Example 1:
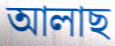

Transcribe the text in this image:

আলাছ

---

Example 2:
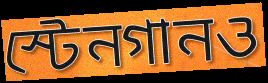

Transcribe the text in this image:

স্টেনগানও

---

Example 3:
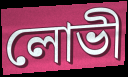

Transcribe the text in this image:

লোভী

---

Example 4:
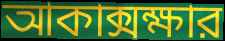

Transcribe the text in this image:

আকাক্সক্ষার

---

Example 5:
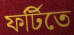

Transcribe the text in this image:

ফর্টিতে